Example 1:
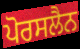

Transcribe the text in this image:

ਪੋਰਸਲੈਨ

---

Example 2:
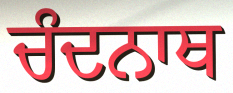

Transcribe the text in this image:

ਚੰਦਨਾਥ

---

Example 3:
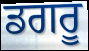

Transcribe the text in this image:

ਡਗਰੂ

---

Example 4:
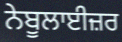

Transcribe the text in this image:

ਨੇਬੂਲਾਈਜ਼ਰ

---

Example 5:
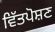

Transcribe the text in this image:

ਵਿੱਤਪੋਸ਼ਣ